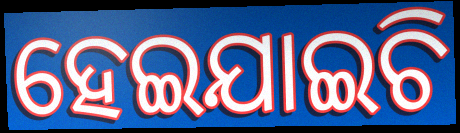
ହେଇଯାଇଚି